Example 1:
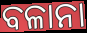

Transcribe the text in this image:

ବଳାନା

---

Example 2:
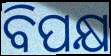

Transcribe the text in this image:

ବିପକ୍ଷ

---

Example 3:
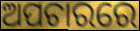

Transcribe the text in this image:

ଅପଚାରରେ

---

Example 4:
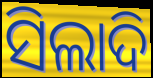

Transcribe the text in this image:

ସିଲାଦି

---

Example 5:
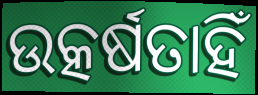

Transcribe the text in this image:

ଉତ୍କର୍ଷତାହିଁ